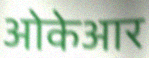
ओकेआर